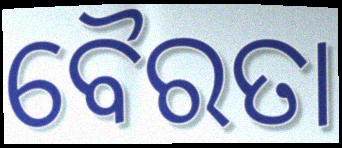
ବୈରତା